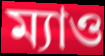
ম্যাও